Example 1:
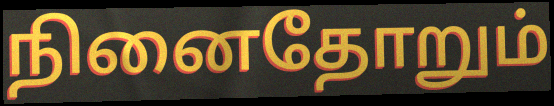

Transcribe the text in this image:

நினைதோறும்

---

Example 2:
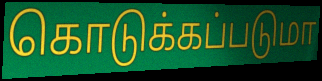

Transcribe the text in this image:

கொடுக்கப்படுமா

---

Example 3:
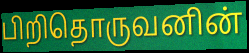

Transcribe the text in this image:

பிறிதொருவனின்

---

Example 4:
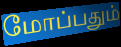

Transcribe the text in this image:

மோப்பதும்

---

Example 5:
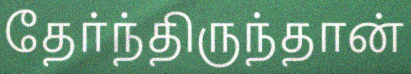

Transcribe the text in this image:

தேர்ந்திருந்தான்